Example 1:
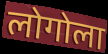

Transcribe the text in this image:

लोगोला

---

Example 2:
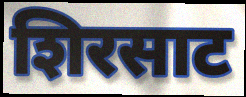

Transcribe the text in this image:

शिरसाट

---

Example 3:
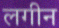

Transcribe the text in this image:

लगीन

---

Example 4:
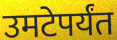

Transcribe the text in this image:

उमटेपर्यंत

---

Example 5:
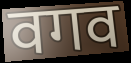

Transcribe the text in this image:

वगव